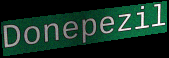
Donepezil